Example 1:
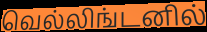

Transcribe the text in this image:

வெல்லிங்டனில்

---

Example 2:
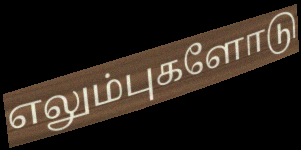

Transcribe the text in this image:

எலும்புகளோடு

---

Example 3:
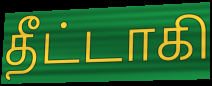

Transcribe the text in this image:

தீட்டாகி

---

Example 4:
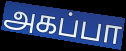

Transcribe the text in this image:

அகப்பா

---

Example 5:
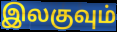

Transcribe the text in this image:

இலகுவும்